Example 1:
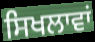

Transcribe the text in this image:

ਸਿਖਲਾਵਾਂ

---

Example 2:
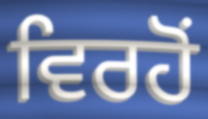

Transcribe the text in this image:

ਵਿਰਹੋਂ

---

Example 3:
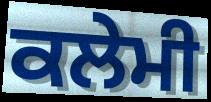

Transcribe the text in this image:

ਕਲੇਮੀ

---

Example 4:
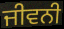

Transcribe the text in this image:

ਜੀਵਨੀ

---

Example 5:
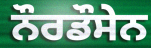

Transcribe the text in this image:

ਨੌਰਡੌਸੇਨ